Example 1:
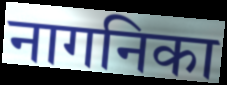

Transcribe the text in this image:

नागनिका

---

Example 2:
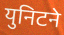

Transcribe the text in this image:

युनिटने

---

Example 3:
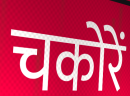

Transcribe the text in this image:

चकोरें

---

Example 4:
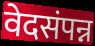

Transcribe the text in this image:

वेदसंपन्न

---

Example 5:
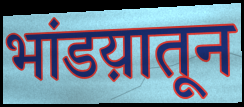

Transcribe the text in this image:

भांडय़ातून